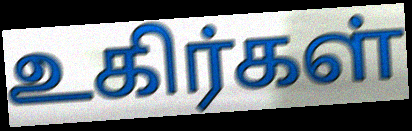
உகிர்கள்